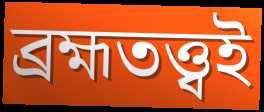
ব্রহ্মতত্ত্বই